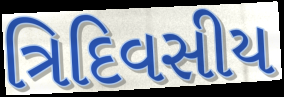
ત્રિદિવસીય